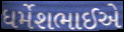
ધર્મેશભાઈએ